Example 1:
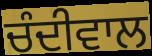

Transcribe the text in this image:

ਚੰਦੀਵਾਲ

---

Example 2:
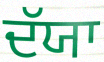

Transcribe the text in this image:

ਦੱਯਾ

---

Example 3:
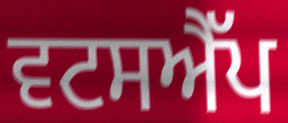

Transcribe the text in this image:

ਵਟਸਐੱਪ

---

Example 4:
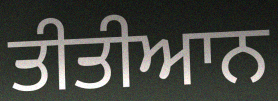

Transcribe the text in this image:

ਤੀਤੀਆਨ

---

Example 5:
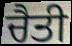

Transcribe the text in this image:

ਚੈਤੀ